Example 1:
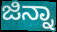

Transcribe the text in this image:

ಜಿನ್ನಾ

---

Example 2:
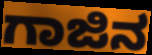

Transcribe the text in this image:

ಗಾಜಿನ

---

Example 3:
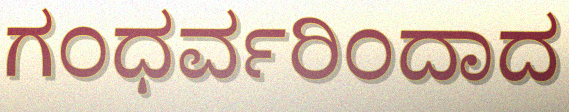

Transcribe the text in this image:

ಗಂಧರ್ವರಿಂದಾದ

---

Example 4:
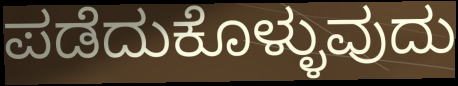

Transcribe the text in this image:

ಪಡೆದುಕೊಳ್ಳುವುದು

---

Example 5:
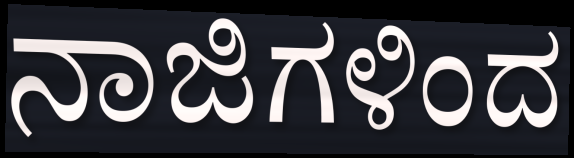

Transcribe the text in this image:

ನಾಜಿಗಳಿಂದ